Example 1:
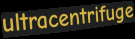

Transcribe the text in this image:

ultracentrifuge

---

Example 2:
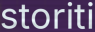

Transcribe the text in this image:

storiti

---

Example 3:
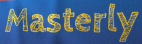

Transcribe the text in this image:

Masterly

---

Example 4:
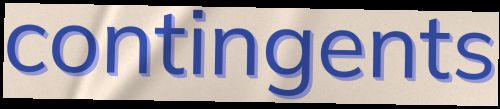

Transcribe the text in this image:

contingents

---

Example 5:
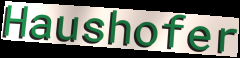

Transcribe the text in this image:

Haushofer